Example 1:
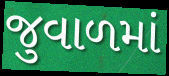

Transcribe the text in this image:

જુવાળમાં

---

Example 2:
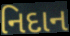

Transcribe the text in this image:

નિદાન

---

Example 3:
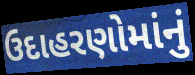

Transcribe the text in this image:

ઉદાહરણોમાંનું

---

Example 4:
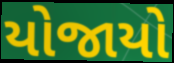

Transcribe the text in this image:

યોજાયો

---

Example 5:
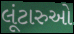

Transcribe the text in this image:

લૂંટારુઓ